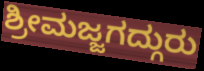
ಶ್ರೀಮಜ್ಜಗದ್ಗುರು